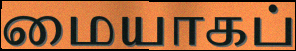
மையாகப்